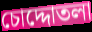
চোদ্দোতলা